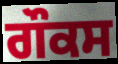
ਗੌਕਸ